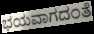
ಭಯವಾಗದಂತೆ